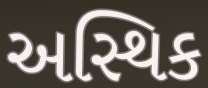
અસ્થિક